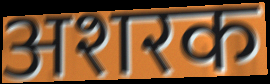
अशरक